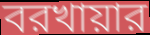
বরখায়ার